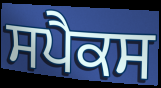
ਸਪੈਕਸ